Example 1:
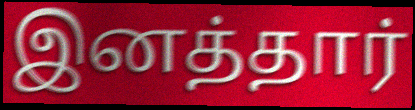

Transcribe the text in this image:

இனத்தார்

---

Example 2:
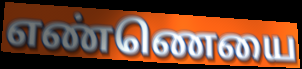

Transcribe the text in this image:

எண்ணெயை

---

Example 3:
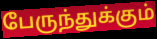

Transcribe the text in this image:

பேருந்துக்கும்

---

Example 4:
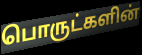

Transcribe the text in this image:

பொருட்களின்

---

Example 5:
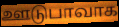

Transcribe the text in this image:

ஊடுபாவாக